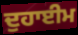
ਦੁਹਾਈਮ